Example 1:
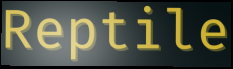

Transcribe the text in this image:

Reptile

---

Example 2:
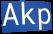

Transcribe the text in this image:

Akp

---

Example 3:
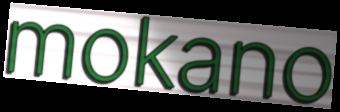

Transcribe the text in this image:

mokano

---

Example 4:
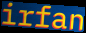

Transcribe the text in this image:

irfan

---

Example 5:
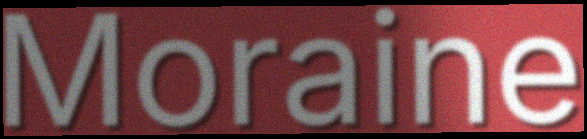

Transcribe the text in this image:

Moraine